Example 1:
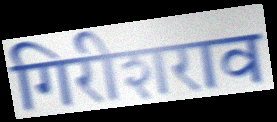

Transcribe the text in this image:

गिरीशराव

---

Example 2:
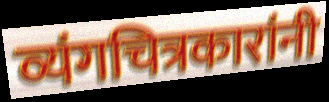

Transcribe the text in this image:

व्यंगचित्रकारांनी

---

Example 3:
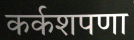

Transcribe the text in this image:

कर्कशपणा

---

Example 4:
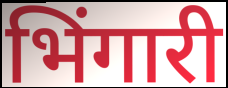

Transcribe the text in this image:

भिंगारी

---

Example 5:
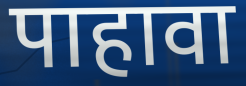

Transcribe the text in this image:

पाहावा